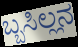
ಬ್ಬಸಿಲ್ಲನ